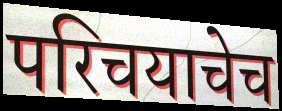
परिचयाचेच